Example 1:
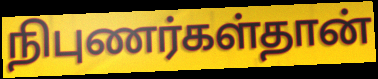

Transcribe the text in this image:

நிபுணர்கள்தான்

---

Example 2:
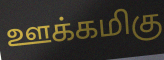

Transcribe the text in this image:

ஊக்கமிகு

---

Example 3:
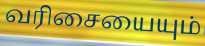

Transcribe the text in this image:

வரிசையையும்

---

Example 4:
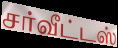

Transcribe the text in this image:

சர்வீட்டஸ்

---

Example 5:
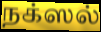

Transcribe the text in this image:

நக்ஸல்